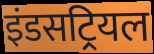
इंडसट्रियल